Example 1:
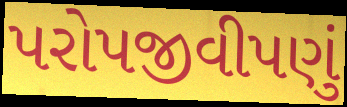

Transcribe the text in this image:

પરોપજીવીપણું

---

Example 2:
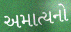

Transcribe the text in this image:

અમાત્યનો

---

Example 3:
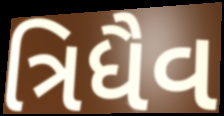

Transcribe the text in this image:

ત્રિધૈવ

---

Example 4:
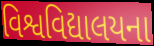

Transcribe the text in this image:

વિશ્વવિદ્યાલયના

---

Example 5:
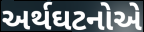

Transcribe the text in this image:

અર્થઘટનોએ